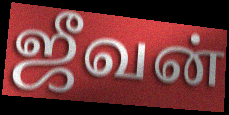
ஜீவன்